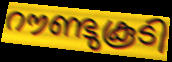
റൗണ്ടുകൂടി